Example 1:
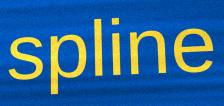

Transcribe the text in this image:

spline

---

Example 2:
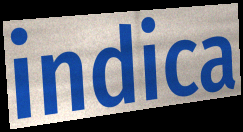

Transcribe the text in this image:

indica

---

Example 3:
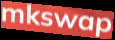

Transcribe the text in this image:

mkswap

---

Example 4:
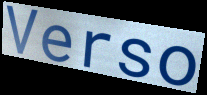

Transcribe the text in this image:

Verso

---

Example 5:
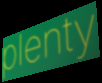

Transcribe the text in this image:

plenty